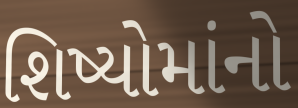
શિષ્યોમાંનો